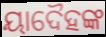
ୟାଦୈହଙ୍କ